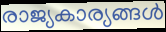
രാജ്യകാര്യങ്ങൾ